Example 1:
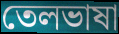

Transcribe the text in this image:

তেলভাষা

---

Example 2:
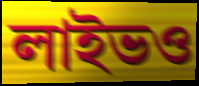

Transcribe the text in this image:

লাইভও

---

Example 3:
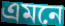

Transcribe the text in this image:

এমনে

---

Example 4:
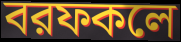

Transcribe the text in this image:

বরফকলে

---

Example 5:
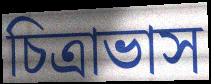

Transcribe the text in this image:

চিত্রাভাস